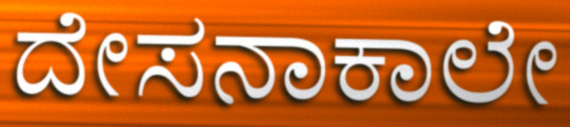
ದೇಸನಾಕಾಲೇ